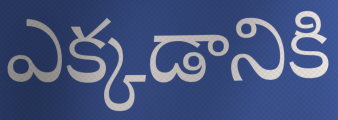
ఎక్కడానికి